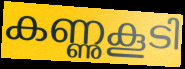
കണ്ണുകൂടി